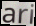
ari